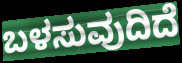
ಬಳಸುವುದಿದೆ